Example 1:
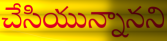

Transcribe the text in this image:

చేసియున్నానని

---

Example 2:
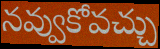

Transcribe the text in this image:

నవ్వుకోవచ్చు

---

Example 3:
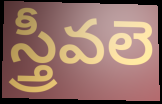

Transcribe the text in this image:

స్త్రీవలె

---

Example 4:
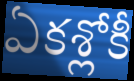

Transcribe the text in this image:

ఏకశ్లోకీ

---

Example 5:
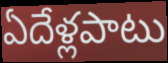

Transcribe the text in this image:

ఏదేళ్లపాటు